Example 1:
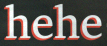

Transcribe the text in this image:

hehe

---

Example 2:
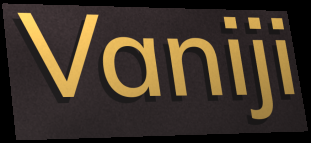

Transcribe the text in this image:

Vaniji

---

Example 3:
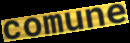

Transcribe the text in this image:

comune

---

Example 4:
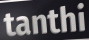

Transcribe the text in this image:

tanthi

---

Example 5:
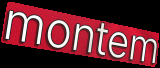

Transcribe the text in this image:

montem